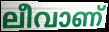
ലീവാണ്